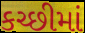
કચ્છીમાં